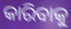
କାରିବାକୁ